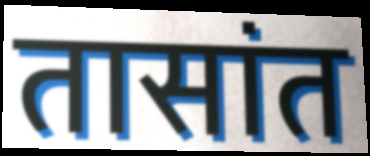
तासांत